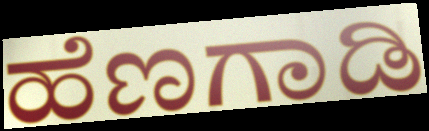
ಹೆಣಗಾಡಿ